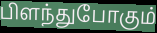
பிளந்துபோகும்